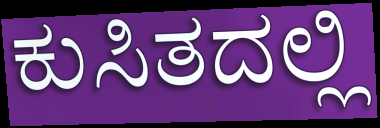
ಕುಸಿತದಲ್ಲಿ